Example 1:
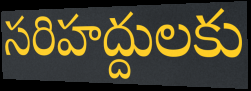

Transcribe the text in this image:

సరిహద్దులకు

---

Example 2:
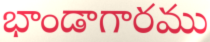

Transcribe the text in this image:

భాండాగారము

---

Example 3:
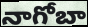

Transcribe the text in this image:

నాగోబా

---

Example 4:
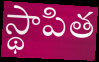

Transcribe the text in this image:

స్థాపిత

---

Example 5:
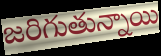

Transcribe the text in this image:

జరిగుతున్నాయి